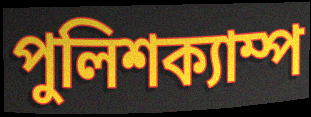
পুলিশক্যাম্প